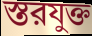
স্তরযুক্ত